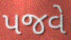
પજવે